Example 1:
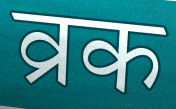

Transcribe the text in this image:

व्रक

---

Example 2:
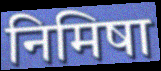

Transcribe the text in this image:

निमिषा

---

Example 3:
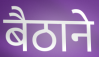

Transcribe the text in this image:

बैठाने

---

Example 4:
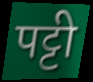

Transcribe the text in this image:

पट्टी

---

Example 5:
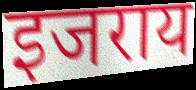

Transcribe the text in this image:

इजराय